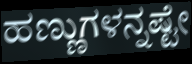
ಹಣ್ಣುಗಳನ್ನಷ್ಟೇ